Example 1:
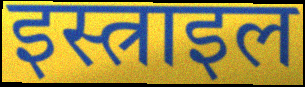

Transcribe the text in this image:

इस्त्राइल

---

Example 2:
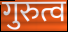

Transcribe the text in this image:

गुरुत्व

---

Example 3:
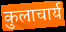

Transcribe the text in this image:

कुलाचार्य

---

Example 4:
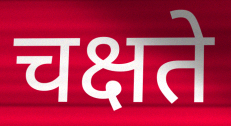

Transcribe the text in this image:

चक्षते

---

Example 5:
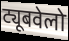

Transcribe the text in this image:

ट्यूबवेलो